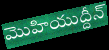
మొహియుద్దీన్